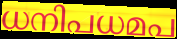
ധനിപധമപ